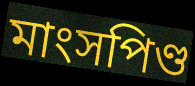
মাংসপিণ্ড